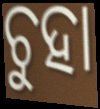
ଚୁହା